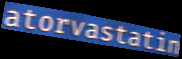
atorvastatin